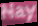
Nay